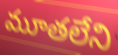
మూతలేని